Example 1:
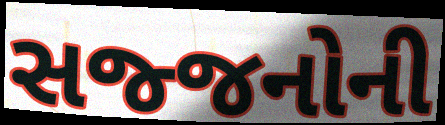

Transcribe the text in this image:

સજ્જનોની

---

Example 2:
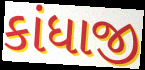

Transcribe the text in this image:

કાંધાજી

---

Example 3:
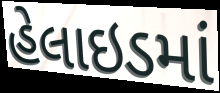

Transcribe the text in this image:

હેલાઇડમાં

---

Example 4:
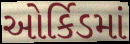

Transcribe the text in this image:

ઓર્કિડમાં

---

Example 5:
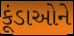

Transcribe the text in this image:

કૂંડાઓને